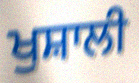
ਖੁਸ਼ਾਲੀ